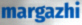
margazhi